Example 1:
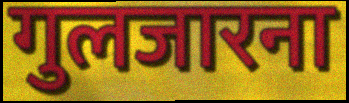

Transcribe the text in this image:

गुलजारना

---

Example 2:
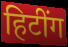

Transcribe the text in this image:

हिटींग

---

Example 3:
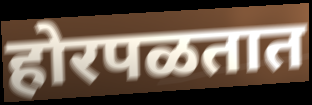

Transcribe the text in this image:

होरपळतात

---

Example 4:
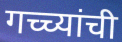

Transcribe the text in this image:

गच्च्यांची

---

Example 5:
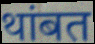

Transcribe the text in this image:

थांबत